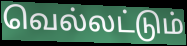
வெல்லட்டும்